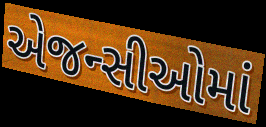
એજન્સીઓમાં